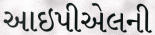
આઇપીએલની